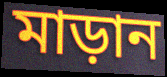
মাড়ান